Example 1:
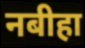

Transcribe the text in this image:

नबीहा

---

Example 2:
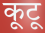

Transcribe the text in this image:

कूटू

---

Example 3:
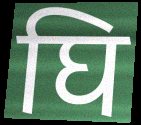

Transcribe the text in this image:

घि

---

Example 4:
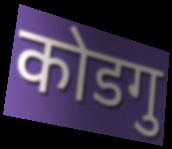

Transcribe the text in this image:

कोडगु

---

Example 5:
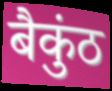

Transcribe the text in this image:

बैकुंठ